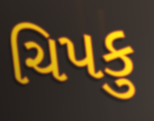
ચિપકુ